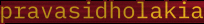
pravasidholakia